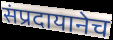
संप्रदायानेच